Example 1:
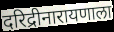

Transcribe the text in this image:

दरिद्रीनारायणाला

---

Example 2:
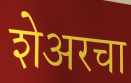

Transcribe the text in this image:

शेअरचा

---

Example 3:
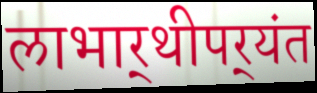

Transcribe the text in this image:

लाभार्थीपर्यंत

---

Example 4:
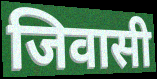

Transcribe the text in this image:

जिवासी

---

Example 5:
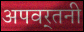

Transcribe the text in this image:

अपवर्तनी